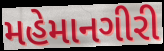
મહેમાનગીરી